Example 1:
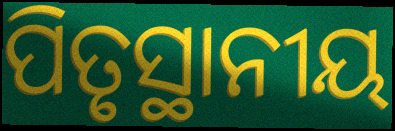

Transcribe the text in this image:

ପିତୃସ୍ଥାନୀୟ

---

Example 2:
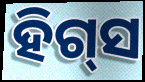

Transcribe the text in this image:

ହିଗ୍‌ସ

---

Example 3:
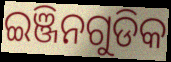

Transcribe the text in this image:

ଇଞ୍ଜିନଗୁଡିକ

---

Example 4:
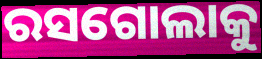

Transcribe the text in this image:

ରସଗୋଲାକୁ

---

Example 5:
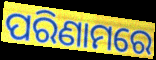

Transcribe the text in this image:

ପରିଣାମରେ